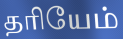
தரியேம்